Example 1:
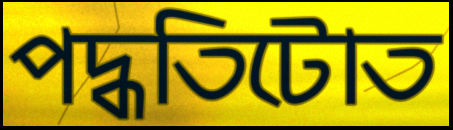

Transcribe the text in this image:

পদ্ধতিটোত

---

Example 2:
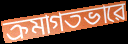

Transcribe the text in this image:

ক্ৰমাগতভাৱে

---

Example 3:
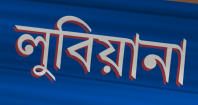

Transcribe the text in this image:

লুবিয়ানা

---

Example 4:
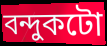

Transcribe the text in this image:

বন্দুকটো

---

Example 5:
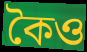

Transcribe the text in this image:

কৈও